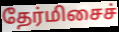
தேர்மிசைச்